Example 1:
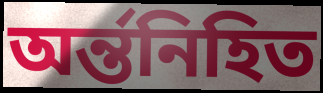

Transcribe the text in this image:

অর্ন্তনিহিত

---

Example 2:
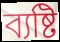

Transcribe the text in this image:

ব্যষ্টি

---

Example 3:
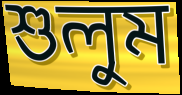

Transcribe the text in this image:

শুলুম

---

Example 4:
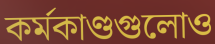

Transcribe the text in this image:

কর্মকাণ্ডগুলোও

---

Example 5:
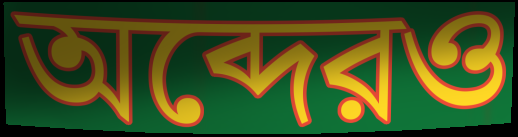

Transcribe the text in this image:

অব্দেরও